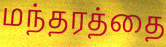
மந்தரத்தை